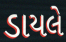
ડાયલે